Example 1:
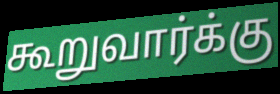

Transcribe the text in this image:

கூறுவார்க்கு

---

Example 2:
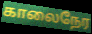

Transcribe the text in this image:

காலைநேர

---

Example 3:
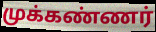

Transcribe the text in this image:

முக்கண்ணர்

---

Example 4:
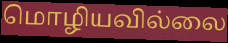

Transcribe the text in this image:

மொழியவில்லை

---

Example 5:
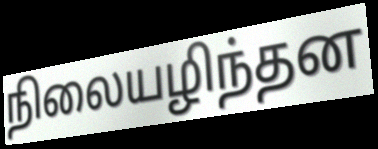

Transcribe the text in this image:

நிலையழிந்தன